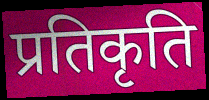
प्रतिकृति